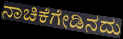
ನಾಚಿಕೆಗೇಡಿನದು